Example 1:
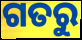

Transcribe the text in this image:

ଗତରୁ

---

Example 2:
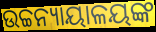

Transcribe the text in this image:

ଉଚ୍ଚନ୍ୟାୟାଳୟଙ୍କ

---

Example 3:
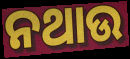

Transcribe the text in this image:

ନଥାଉ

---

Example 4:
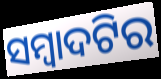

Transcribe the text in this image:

ସମ୍ବାଦଟିର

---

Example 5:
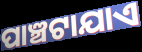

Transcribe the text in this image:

ପାଞ୍ଚଟାଯାଏ